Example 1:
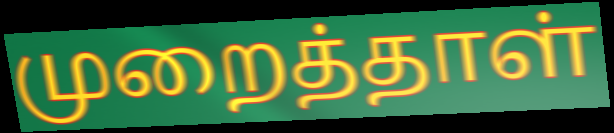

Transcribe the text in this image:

முறைத்தாள்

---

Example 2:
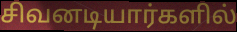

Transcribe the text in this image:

சிவனடியார்களில்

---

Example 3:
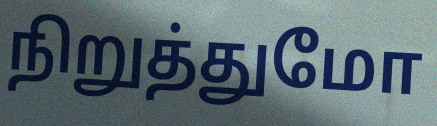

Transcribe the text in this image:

நிறுத்துமோ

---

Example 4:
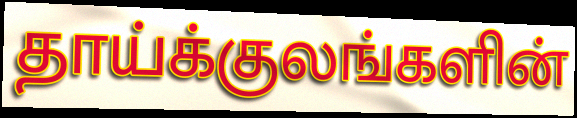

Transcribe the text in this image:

தாய்க்குலங்களின்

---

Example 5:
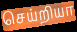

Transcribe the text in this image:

செய்றியா